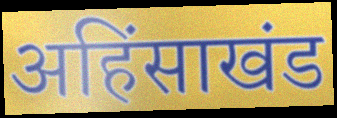
अहिंसाखंड